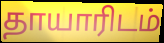
தாயாரிடம்